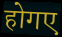
होगए